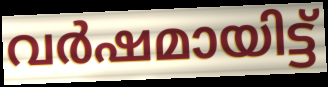
വർഷമായിട്ട്